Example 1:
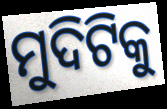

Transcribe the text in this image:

ମୁଦିଟିକୁ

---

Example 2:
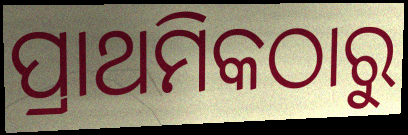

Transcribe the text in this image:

ପ୍ରାଥମିକଠାରୁ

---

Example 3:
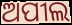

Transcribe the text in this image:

ଅପୀଲ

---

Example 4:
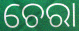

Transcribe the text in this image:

ଚେରା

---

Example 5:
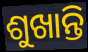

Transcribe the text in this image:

ଶୁଖାନ୍ତି